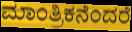
ಮಾಂತ್ರಿಕನೆಂದರೆ